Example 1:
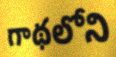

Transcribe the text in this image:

గాథలోని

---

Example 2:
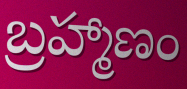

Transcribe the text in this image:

బ్రహ్మాణం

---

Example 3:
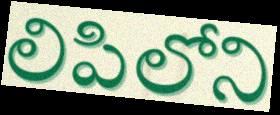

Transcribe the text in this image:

లిపిలోని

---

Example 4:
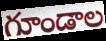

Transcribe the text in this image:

గూండాల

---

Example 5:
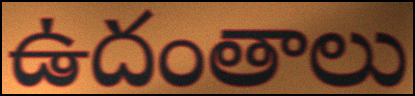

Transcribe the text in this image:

ఉదంతాలు